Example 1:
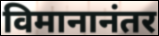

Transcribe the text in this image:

विमानानंतर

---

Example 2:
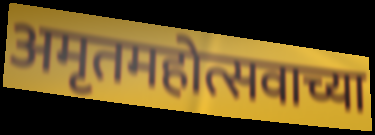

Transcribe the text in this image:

अमृतमहोत्सवाच्या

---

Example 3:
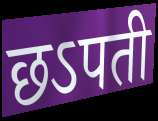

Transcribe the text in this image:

छऽपती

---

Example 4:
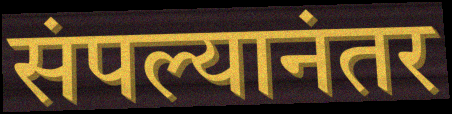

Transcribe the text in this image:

संपल्यानंतर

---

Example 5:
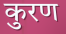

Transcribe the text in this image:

कुरण